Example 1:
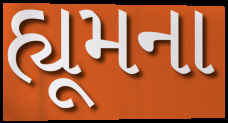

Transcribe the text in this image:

હ્યૂમના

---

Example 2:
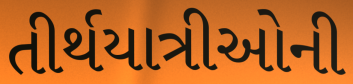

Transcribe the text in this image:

તીર્થયાત્રીઓની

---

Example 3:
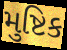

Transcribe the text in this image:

મુષ્ટિક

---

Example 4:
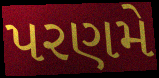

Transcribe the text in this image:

પરણમે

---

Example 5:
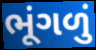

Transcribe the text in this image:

ભૂંગળું